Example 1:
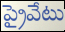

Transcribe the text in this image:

ప్రైవేటు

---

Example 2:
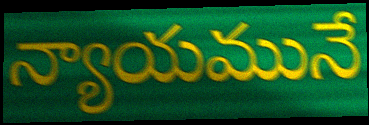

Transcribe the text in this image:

న్యాయమునే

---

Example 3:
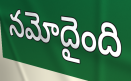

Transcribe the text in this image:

నమోదైంది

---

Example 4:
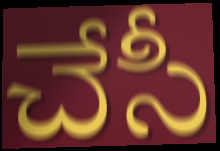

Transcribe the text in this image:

చేసీ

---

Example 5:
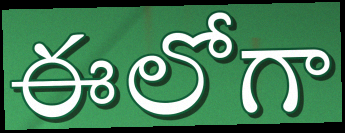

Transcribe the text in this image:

ఈలోగా